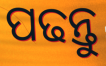
ପଢନ୍ତୁ